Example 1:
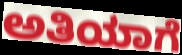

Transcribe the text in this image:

ಅತಿಯಾಗೆ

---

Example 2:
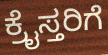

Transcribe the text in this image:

ಕ್ರೈಸ್ತರಿಗೆ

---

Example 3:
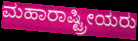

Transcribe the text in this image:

ಮಹಾರಾಷ್ಟ್ರೀಯರು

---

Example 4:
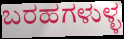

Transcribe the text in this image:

ಬರಹಗಳುಳ್ಳ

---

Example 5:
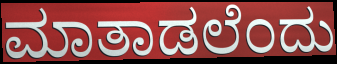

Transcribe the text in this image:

ಮಾತಾಡಲೆಂದು